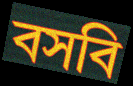
বসবি